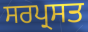
ਸਰਪ੍ਰਸਤ